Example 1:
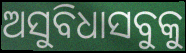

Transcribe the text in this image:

ଅସୁବିଧାସବୁକୁ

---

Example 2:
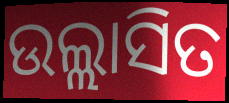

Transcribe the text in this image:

ଉଲ୍ଲାସିତ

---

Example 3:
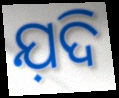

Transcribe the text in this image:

ଯ଼ଦି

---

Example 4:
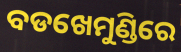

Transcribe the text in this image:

ବଡଖେମୁଣ୍ଡିରେ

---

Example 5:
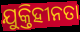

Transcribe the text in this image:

ଯୁକ୍ତିହୀନତା